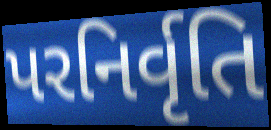
પરનિર્વૃતિ